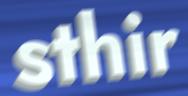
sthir